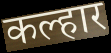
कल्हार